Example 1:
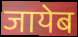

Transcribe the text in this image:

जायेब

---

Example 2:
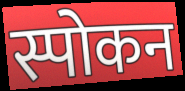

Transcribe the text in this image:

स्पोकन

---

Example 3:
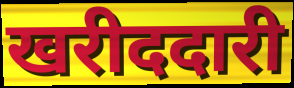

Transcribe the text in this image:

खरीददारी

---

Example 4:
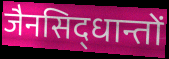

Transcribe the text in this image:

जैनसिद्धान्तों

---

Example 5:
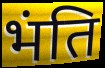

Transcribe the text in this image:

भंति